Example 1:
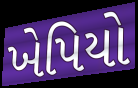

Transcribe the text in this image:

ખેપિયો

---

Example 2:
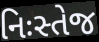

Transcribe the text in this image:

નિઃસ્તેજ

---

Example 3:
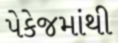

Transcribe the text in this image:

પેકેજમાંથી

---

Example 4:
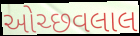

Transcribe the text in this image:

ઓચ્છવલાલ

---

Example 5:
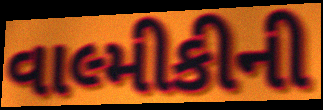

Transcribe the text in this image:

વાલ્મીકીની